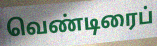
வெண்டிரைப்